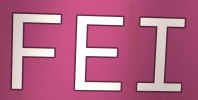
FEI